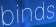
binds